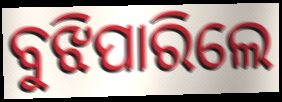
ବୁଝିପାରିଲେ